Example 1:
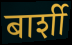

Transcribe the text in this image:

बार्शी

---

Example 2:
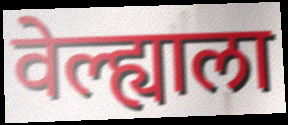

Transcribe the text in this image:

वेल्ह्याला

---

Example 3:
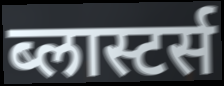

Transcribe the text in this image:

ब्लास्टर्स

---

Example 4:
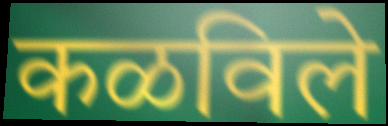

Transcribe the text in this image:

कळविले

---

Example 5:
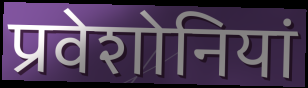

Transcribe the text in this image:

प्रवेशोनियां